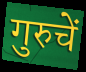
गुरुचें